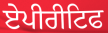
ਏਪੀਰੀਟਿਫ